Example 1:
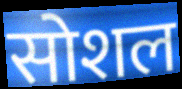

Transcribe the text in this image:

सोशल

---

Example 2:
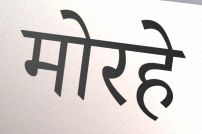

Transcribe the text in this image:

मोरहे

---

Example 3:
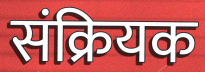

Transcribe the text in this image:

संक्रियक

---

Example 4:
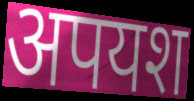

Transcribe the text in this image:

अपयश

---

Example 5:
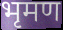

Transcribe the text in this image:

भृमण